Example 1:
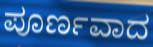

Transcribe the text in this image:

ಪೂರ್ಣವಾದ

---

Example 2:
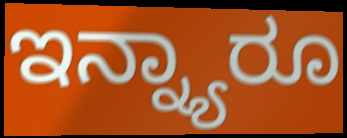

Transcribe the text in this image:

ಇನ್ನ್ಯಾರೂ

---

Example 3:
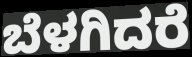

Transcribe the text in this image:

ಬೆಳಗಿದರೆ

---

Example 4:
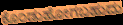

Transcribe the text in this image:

ಕೊಂಡುಹೋಗಬಹುದು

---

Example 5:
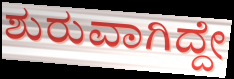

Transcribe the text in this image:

ಶುರುವಾಗಿದ್ದೇ